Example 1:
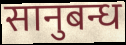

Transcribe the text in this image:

सानुबन्ध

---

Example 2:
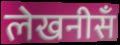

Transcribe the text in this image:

लेखनीसँ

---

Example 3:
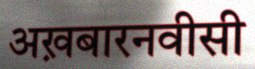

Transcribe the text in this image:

अख़बारनवीसी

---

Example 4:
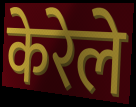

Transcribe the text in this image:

केरेले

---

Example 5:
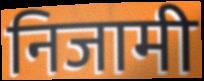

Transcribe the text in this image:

निजामी